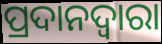
ପ୍ରଦାନଦ୍ୱାରା